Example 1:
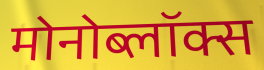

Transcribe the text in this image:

मोनोब्लॉक्स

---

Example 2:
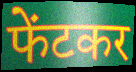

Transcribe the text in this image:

फेंटकर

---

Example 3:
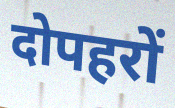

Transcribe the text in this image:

दोपहरों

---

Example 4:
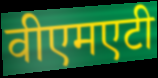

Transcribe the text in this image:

वीएमएटी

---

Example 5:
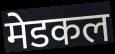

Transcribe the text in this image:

मेडकल